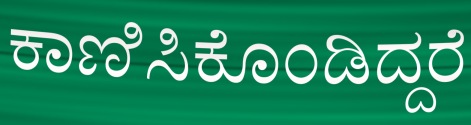
ಕಾಣಿಸಿಕೊಂಡಿದ್ದರೆ